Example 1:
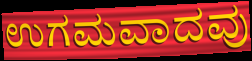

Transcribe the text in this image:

ಉಗಮವಾದವು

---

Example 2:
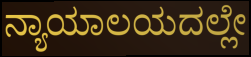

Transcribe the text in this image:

ನ್ಯಾಯಾಲಯದಲ್ಲೇ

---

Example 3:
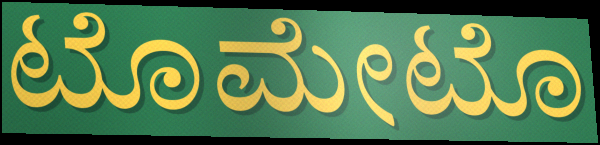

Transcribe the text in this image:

ಟೊಮೇಟೊ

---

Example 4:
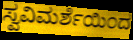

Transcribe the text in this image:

ಸ್ವವಿಮರ್ಶೆಯಿಂದ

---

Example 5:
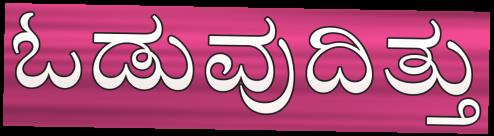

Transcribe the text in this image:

ಓಡುವುದಿತ್ತು